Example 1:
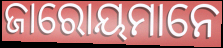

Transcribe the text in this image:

ଜାରୋୟମାନେ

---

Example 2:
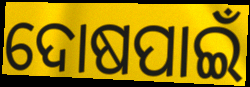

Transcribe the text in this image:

ଦୋଷପାଇଁ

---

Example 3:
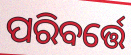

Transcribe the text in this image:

ପରିବର୍ତ୍ତେ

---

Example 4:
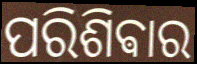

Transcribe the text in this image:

ପରିଶିଵାର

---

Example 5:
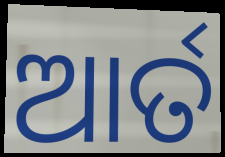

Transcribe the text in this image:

ଆର୍ତ